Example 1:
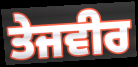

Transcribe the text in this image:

ਤੇਜਵੀਰ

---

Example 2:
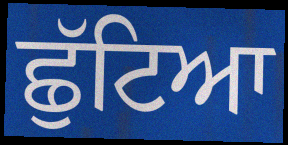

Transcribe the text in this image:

ਛੁੱਟਿਆ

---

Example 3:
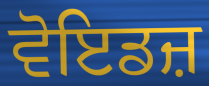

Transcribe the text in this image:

ਵੋਇਡਜ਼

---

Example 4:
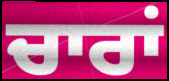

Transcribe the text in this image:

ਚਾਰਾਂ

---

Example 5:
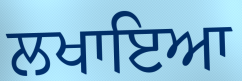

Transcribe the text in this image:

ਲਖਾਇਆ